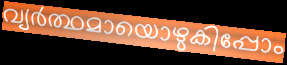
വ്യർത്ഥമായൊഴുകിപ്പോം